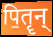
पि॒तॄन्